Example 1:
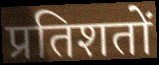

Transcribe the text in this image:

प्रतिशतों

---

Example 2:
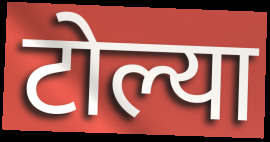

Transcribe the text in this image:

टोल्या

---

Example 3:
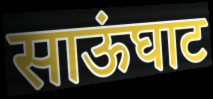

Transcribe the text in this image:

साऊंघाट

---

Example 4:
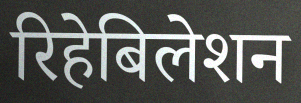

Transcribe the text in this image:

रिहेबिलेशन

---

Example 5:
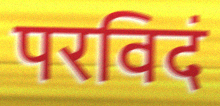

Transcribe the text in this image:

परविदं